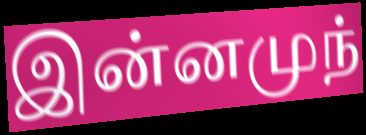
இன்னமுந்